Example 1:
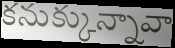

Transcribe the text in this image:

కనుక్కున్నావా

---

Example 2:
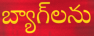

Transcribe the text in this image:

బ్యాగ్‌లను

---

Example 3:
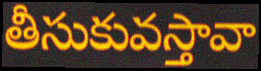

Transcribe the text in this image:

తీసుకువస్తావా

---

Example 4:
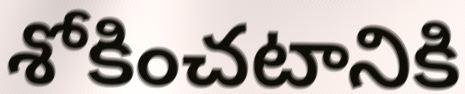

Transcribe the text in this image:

శోకించటానికి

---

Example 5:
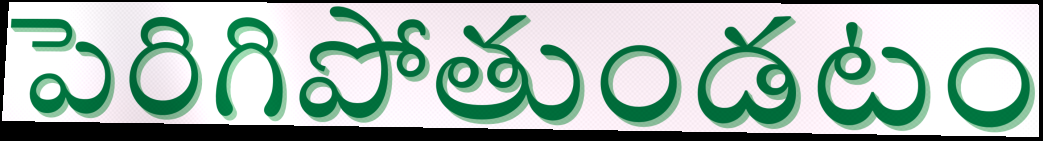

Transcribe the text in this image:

పెరిగిపోతుండటం